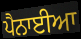
ਪੈਨਾਈਆ